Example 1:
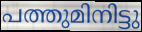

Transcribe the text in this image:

പത്തുമിനിട്ടു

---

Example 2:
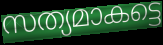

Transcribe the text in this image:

സത്യമാകട്ടെ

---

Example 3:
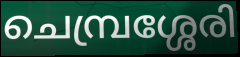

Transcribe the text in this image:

ചെമ്പ്രശ്ശേരി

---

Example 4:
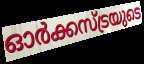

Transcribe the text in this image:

ഓർക്കസ്ട്രയുടെ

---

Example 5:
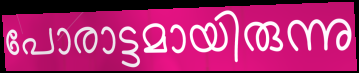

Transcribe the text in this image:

പോരാട്ടമായിരുന്നു